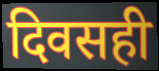
दिवसही